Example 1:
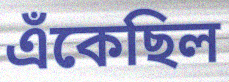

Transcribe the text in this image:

এঁকেছিল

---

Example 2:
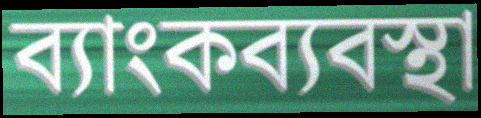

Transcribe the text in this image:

ব্যাংকব্যবস্থা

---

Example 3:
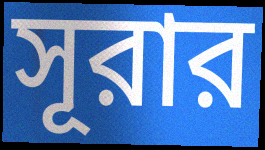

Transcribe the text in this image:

সূরার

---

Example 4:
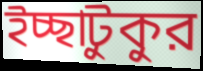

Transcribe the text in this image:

ইচ্ছাটুকুর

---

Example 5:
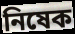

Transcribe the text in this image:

নিষেক